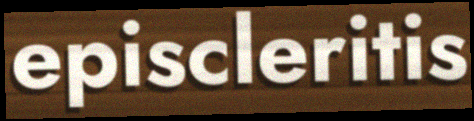
episcleritis